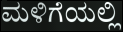
ಮಳಿಗೆಯಲ್ಲಿ